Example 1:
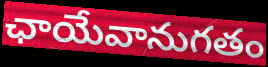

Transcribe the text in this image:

ఛాయేవానుగతం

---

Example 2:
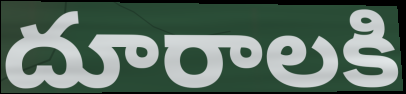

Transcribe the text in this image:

దూరాలకి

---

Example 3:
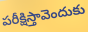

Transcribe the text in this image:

పరీక్షిస్తావెందుకు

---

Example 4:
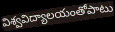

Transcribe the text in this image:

విశ్వవిద్యాలయంతోపాటు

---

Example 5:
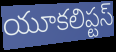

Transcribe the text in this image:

యూకలిప్టస్